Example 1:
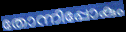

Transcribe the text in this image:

തോന്നിപ്പോകും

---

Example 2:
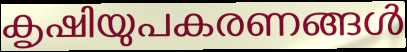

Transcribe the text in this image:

കൃഷിയുപകരണങ്ങൾ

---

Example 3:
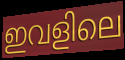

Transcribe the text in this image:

ഇവളിലെ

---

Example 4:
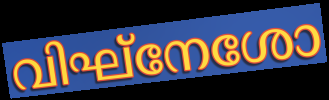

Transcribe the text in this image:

വിഘ്നേശോ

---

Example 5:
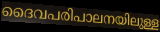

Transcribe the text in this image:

ദൈവപരിപാലനയിലുള്ള